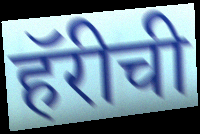
हॅरीची